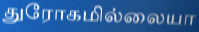
துரோகமில்லையா